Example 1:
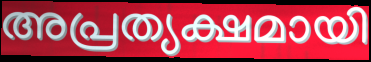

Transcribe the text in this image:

അപ്രത്യക്ഷമായി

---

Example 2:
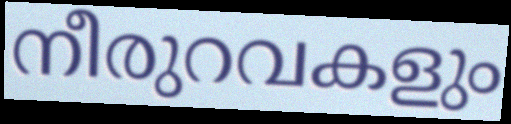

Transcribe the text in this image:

നീരുറവകളും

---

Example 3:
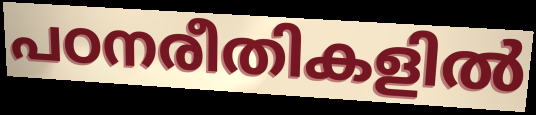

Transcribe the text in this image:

പഠനരീതികളിൽ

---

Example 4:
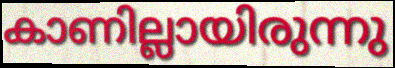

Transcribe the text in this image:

കാണില്ലായിരുന്നു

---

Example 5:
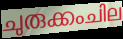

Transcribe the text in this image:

ചുരുക്കംചില